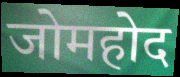
जोमहोद